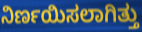
ನಿರ್ಣಯಿಸಲಾಗಿತ್ತು